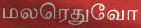
மலரெதுவோ